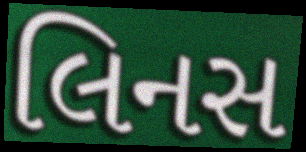
લિનસ